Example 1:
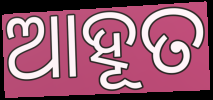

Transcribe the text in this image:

ଆହୂତ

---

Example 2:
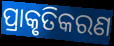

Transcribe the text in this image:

ପ୍ରାକୃତିକରଣ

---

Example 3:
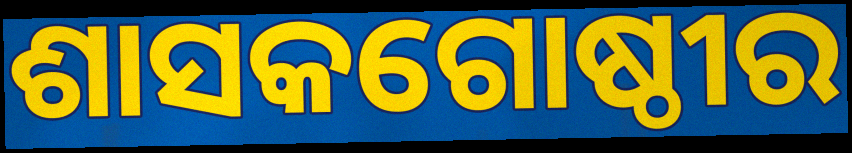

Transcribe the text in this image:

ଶାସକଗୋଷ୍ଠୀର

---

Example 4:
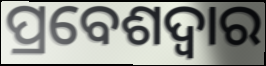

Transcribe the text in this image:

ପ୍ରବେଶଦ୍ଵାର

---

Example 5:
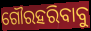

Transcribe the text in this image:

ଗୌରହରିବାବୁ